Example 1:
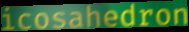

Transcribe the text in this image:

icosahedron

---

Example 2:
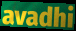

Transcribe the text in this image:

avadhi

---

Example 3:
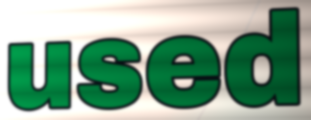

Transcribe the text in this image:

used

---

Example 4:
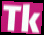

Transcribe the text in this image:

Tk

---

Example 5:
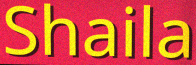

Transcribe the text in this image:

Shaila